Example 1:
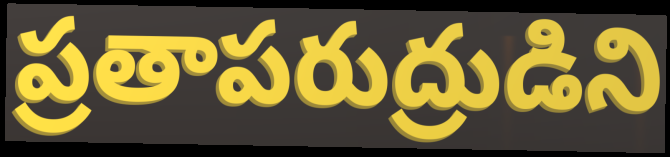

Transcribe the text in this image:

ప్రతాపరుద్రుడిని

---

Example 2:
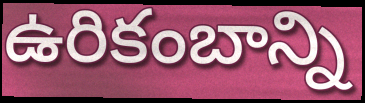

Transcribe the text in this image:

ఉరికంబాన్ని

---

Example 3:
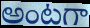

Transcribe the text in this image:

అంటగా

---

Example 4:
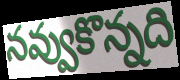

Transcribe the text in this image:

నవ్వుకొన్నది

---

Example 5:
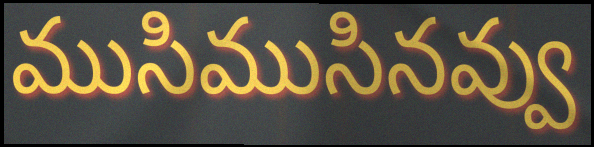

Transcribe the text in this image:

ముసిముసినవ్వు